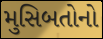
મુસિબતોનો